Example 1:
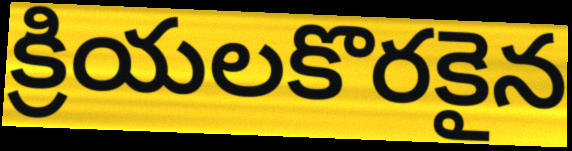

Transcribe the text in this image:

క్రియలకొరకైన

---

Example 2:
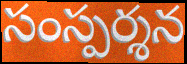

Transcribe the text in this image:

సంస్పర్శన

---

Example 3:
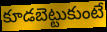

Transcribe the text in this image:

కూడబెట్టుకుంటే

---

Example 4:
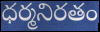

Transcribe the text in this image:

ధర్మనిరతం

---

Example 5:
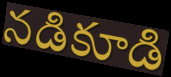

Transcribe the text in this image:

నడికూడి